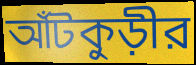
আঁটকুড়ীর